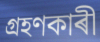
গ্ৰহণকাৰী